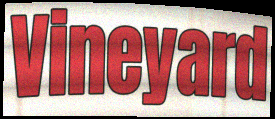
Vineyard